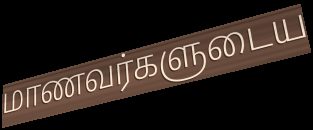
மாணவர்களுடைய